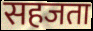
सहजता